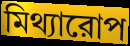
মিথ্যারোপ